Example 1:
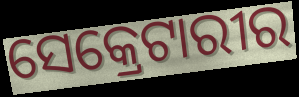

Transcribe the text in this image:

ସେକ୍ରେଟାରୀର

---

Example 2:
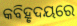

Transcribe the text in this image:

କବିହୃଦୟରେ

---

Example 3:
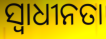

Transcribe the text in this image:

ସ୍ବାଧୀନତା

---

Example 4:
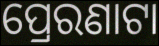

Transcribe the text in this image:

ପ୍ରେରଣାଟା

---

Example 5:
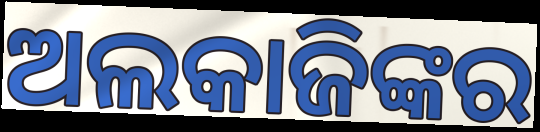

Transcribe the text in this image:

ଅଲକାଜିଙ୍କର